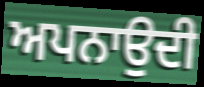
ਅਪਨਾਉਦੀ